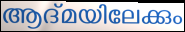
ആദ്മയിലേക്കും